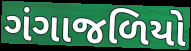
ગંગાજળિયો